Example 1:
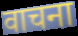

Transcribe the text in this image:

वाचना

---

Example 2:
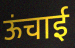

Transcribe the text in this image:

ऊंचाई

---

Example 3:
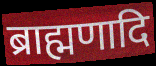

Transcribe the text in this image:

ब्राह्मणादि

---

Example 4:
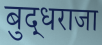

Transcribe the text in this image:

बुद्धराजा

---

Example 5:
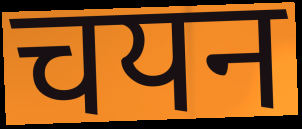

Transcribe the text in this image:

चयन